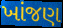
ખાંજણ